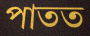
পাতত